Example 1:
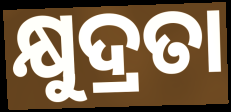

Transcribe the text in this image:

କ୍ଷୁଦ୍ରତା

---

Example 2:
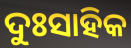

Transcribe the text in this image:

ଦୁଃସାହିକ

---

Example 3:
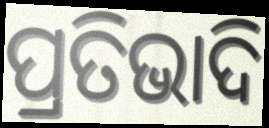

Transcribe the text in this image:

ପ୍ରତିଭାଦି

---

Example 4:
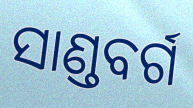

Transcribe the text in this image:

ସାଣ୍ଡବର୍ଗ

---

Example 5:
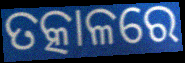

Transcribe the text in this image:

ତତ୍କାଳରେ